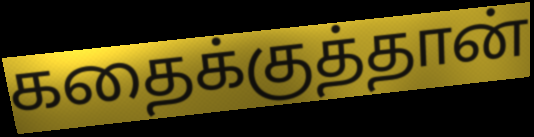
கதைக்குத்தான்